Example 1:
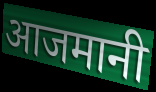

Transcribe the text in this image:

आजमानी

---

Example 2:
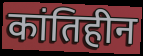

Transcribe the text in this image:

कांतिहीन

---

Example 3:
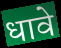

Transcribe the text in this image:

धावे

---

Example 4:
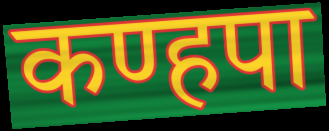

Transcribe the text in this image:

कण्हपा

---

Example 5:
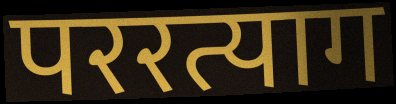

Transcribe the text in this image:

पररत्याग